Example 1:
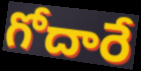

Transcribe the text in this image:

గోదారే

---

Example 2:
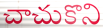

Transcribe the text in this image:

చాచుకొని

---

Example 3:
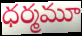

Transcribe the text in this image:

ధర్మమూ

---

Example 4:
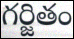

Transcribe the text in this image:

గర్జితం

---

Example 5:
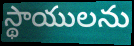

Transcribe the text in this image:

స్థాయులను